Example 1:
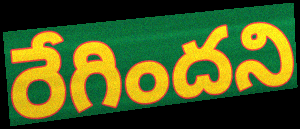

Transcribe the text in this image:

రేగిందని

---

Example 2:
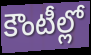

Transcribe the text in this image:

కౌంటీల్లో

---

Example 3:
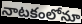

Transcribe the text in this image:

నాటకంలోనూ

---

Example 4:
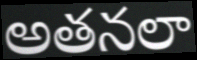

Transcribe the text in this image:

అతనలా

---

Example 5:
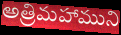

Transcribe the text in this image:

అత్రిమహాముని